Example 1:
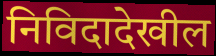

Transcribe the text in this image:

निविदादेखील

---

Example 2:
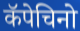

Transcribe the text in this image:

कॅपेचिनो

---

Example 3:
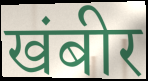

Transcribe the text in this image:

खंबीर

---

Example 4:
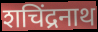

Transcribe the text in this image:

शचिंद्रनाथ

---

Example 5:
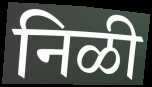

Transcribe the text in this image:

निळी